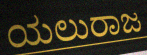
ಯಲುರಾಜ